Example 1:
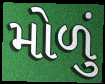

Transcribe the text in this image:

મોળું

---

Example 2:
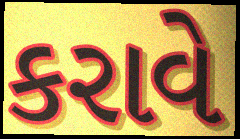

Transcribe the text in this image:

કરાવે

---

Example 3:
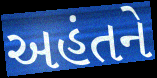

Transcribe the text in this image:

અહંતને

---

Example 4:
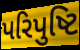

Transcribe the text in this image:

પરિપુષ્ટિ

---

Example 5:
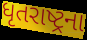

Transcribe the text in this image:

ધૃતરાષ્ટ્રના